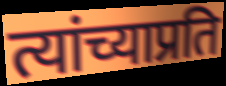
त्यांच्याप्रति